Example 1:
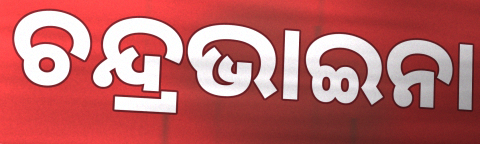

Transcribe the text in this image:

ଚନ୍ଦ୍ରଭାଇନା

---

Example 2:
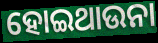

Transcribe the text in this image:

ହୋଇଥାଉନା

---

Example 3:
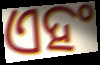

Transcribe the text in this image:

ଏହଂ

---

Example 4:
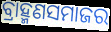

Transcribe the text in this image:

ବ୍ରାହ୍ମଣସମାଜର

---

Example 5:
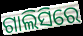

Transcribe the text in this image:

ଗାଲିସିରେ